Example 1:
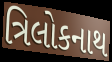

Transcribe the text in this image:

ત્રિલોકનાથ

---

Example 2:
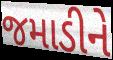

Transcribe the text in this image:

જમાડીને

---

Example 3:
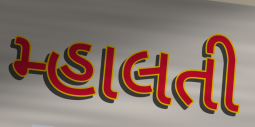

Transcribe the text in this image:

મ્હાલતી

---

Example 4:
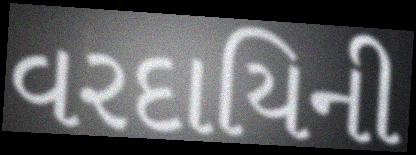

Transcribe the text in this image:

વરદાયિની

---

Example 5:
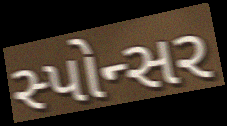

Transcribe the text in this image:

સ્પોન્સર